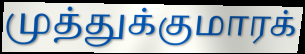
முத்துக்குமாரக்